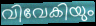
വിവേകിയും